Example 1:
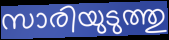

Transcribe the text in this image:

സാരിയുടുത്തു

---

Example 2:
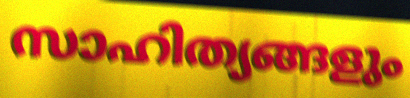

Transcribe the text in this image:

സാഹിത്യങ്ങളും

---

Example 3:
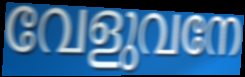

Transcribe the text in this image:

വേളുവനേ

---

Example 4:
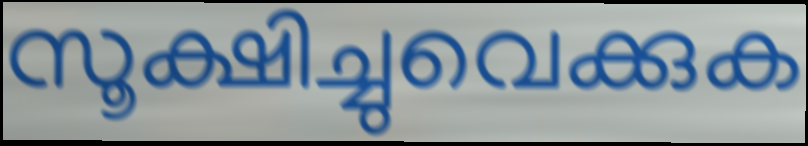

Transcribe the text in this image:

സൂക്ഷിച്ചുവെക്കുക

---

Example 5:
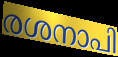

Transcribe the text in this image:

രശനാപി